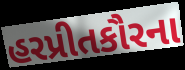
હરપ્રીતકૌરના